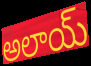
అలాయ్